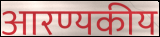
आरण्यकीय